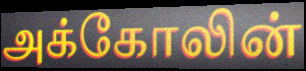
அக்கோலின்